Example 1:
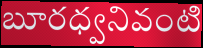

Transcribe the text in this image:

బూరధ్వనివంటి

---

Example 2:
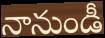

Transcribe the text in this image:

నానుండీ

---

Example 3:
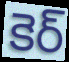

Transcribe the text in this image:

కెర్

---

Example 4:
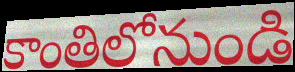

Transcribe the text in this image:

కాంతిలోనుండి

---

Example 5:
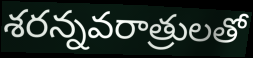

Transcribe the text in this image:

శరన్నవరాత్రులతో